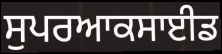
ਸੁਪਰਆਕਸਾਈਡ